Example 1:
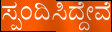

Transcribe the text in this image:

ಸ್ಪಂದಿಸಿದ್ದೇವೆ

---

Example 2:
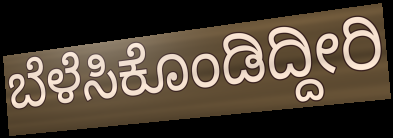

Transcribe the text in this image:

ಬೆಳೆಸಿಕೊಂಡಿದ್ದೀರಿ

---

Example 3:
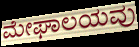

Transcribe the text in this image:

ಮೇಘಾಲಯವು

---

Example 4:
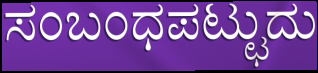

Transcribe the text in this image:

ಸಂಬಂಧಪಟ್ಟುದು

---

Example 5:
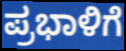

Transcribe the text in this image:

ಪ್ರಭಾಳಿಗೆ